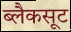
ब्लैकसूट